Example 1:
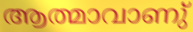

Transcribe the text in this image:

ആത്മാവാണു്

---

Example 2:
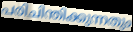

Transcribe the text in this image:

പരിചിന്തിക്കുന്നതും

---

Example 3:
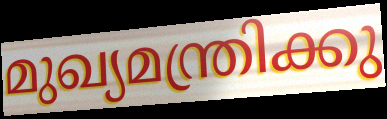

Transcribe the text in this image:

മുഖ്യമന്ത്രിക്കു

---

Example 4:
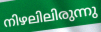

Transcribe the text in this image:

നിഴലിലിരുന്നു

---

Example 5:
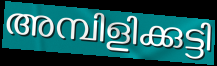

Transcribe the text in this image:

അമ്പിളിക്കുട്ടി